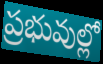
ప్రభువుల్లో